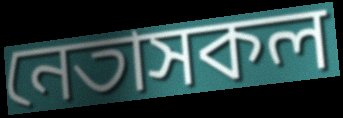
নেতাসকল